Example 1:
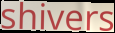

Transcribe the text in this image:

shivers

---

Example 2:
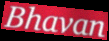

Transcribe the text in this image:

Bhavan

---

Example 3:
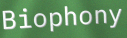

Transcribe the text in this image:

Biophony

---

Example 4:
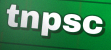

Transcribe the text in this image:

tnpsc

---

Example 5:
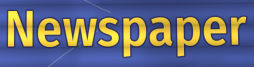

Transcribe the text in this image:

Newspaper